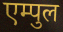
एम्पुल